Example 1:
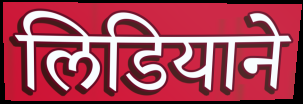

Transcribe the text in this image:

लिडियाने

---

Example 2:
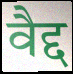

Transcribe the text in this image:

वैद्द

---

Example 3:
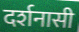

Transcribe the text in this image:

दर्शनासी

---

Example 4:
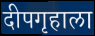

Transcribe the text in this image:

दीपगृहाला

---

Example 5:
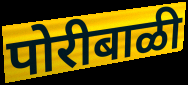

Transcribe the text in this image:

पोरीबाळी